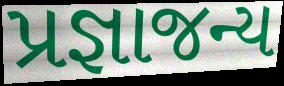
પ્રજ્ઞાજન્ય